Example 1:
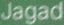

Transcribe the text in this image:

Jagad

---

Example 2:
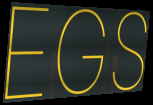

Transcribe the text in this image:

EGS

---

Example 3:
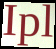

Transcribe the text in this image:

Ipl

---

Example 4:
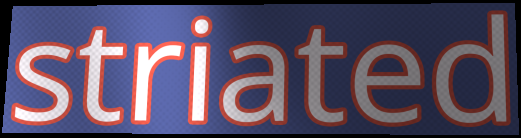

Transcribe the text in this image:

striated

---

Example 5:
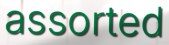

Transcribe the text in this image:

assorted